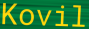
Kovil